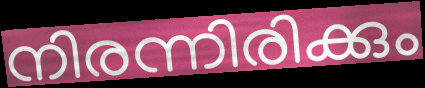
നിരന്നിരിക്കും